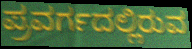
ಪ್ರವರ್ಗದಲ್ಲಿರುವ